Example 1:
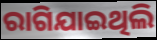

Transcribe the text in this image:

ରାଗିଯାଇଥିଲି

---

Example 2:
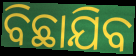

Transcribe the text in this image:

ବିଛାଯିବ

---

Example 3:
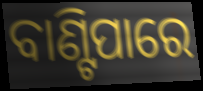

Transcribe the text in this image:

ବାଣ୍ଟିପାରେ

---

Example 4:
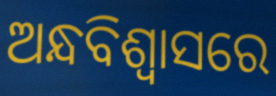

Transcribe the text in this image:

ଅନ୍ଧବିଶ୍ବାସରେ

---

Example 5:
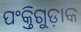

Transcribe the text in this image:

ପଂକ୍ତିଗୁଡ଼ାକ